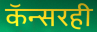
कॅन्सरही